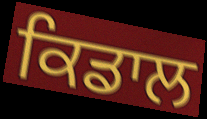
ਕਿਡਾਲ